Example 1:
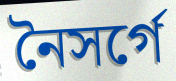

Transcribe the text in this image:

নৈসর্গে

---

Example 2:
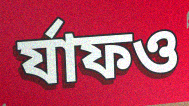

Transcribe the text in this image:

র্যাফও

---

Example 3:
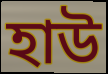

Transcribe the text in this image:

হাউ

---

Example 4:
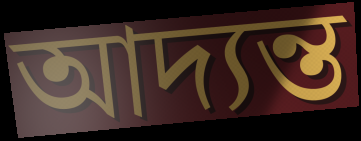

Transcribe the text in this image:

আদ্যন্ত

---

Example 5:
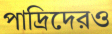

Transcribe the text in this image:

পাদ্রিদেরও